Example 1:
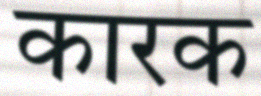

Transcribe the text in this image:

कारक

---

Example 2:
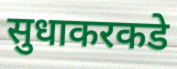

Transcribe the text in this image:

सुधाकरकडे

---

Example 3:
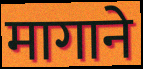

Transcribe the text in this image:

मागाने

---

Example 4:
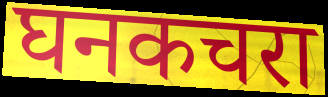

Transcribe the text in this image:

घनकचरा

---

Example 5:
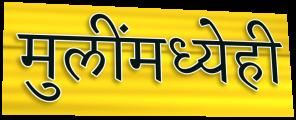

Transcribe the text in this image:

मुलींमध्येही